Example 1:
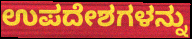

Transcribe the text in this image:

ಉಪದೇಶಗಳನ್ನು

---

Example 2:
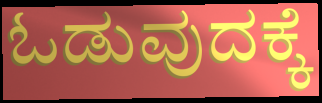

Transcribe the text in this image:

ಓಡುವುದಕ್ಕೆ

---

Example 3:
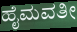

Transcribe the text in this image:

ಹೈಮವತೀ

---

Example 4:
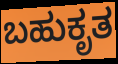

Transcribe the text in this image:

ಬಹುಕೃತ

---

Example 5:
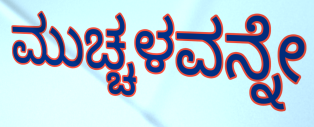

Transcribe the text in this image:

ಮುಚ್ಚಳವನ್ನೇ